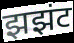
झझंट